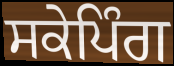
ਸਕੇਪਿੰਗ